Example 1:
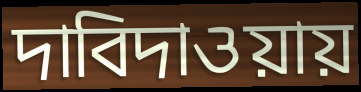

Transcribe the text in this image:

দাবিদাওয়ায়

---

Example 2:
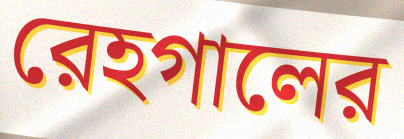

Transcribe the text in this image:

রেহগালের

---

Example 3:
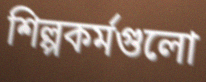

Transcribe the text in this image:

শিল্পকর্মগুলো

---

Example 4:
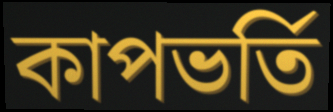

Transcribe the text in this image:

কাপভর্তি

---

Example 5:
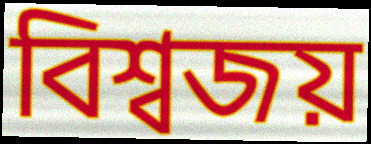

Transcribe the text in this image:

বিশ্বজয়